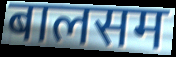
बालसम